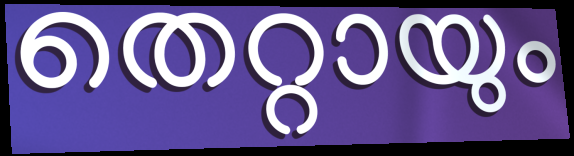
തെറ്റായും